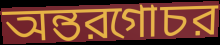
অন্তরগোচর